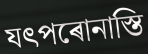
যৎপৰোনাস্তি